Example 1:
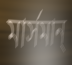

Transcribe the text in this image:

মার্সমান্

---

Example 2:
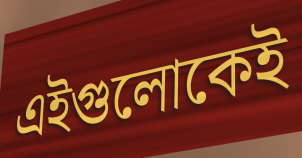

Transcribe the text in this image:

এইগুলোকেই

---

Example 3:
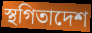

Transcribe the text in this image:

স্থগিতাদেশ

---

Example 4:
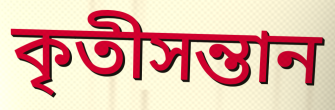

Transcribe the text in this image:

কৃতীসন্তান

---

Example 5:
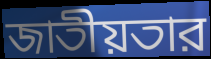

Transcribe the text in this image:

জাতীয়তার